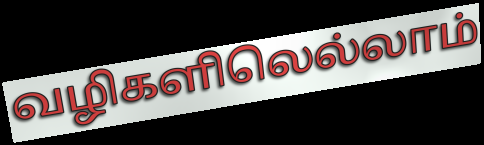
வழிகளிலெல்லாம்